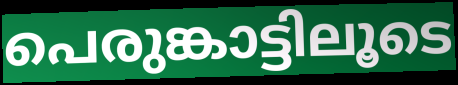
പെരുങ്കാട്ടിലൂടെ